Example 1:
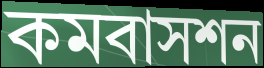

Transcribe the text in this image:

কমবাসশন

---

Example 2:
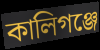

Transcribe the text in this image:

কালিগঞ্জে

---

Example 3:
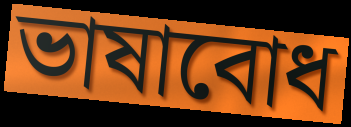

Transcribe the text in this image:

ভাষাবোধ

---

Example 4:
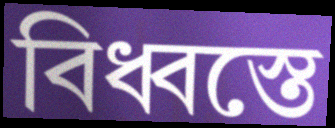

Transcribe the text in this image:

বিধ্বস্তে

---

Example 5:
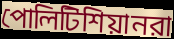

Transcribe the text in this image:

পোলিটিশিয়ানরা